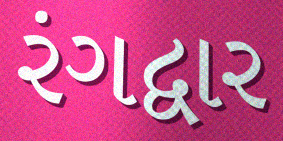
રંગદ્વાર